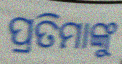
ପ୍ରତିମାଙ୍କୁ